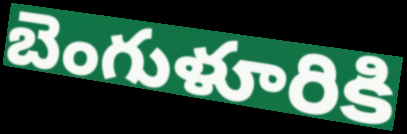
బెంగుళూరికి